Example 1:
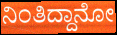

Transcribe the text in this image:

ನಿಂತಿದ್ದಾನೋ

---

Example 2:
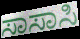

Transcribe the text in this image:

ಸಾಸಾಸಿ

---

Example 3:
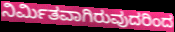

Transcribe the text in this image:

ನಿರ್ಮಿತವಾಗಿರುವುದರಿಂದ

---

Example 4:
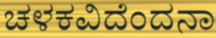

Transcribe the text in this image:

ಚಳಕವಿದೆಂದನಾ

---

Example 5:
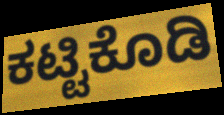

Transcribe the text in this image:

ಕಟ್ಟಿಕೊಡಿ